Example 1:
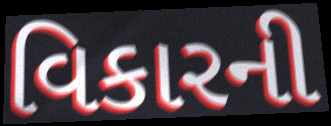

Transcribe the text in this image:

વિકારની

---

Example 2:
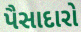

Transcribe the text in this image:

પૈસાદારો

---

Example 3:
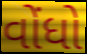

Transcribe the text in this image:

વોંધો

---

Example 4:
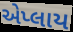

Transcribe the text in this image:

એપ્લાય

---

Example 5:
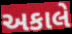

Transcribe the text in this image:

અકાલે